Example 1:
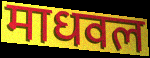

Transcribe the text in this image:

माधवल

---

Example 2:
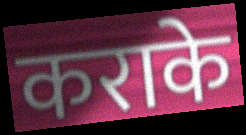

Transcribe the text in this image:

कराके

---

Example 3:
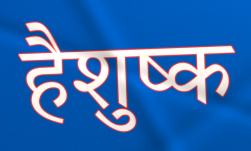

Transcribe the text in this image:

हैशुष्क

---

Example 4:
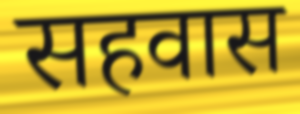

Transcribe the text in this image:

सहवास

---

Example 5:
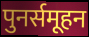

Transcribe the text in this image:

पुनर्समूहन